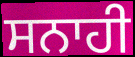
ਸਨਾਹੀ